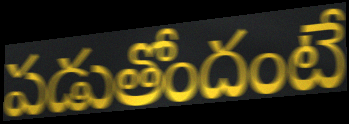
పడుతోందంటే